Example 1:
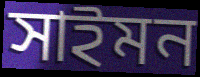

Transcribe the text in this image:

সাইমন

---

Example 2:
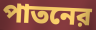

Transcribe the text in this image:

পাতনের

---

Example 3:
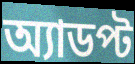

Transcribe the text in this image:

অ্যাডপ্ট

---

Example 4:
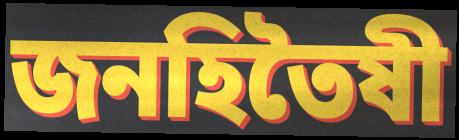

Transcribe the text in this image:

জনহিতৈষী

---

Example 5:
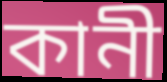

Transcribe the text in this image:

কানী